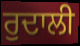
ਰੁਦਾਲੀ